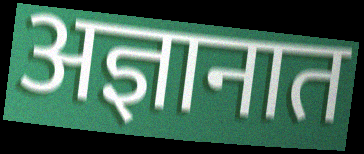
अज्ञानात